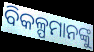
ବିକଳ୍ପମାନଙ୍କୁ